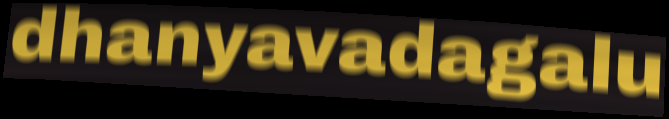
dhanyavadagalu